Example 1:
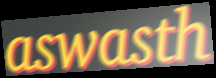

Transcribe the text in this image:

aswasth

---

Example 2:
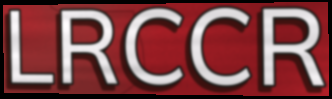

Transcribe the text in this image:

LRCCR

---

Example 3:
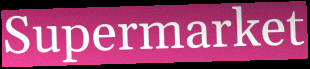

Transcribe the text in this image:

Supermarket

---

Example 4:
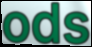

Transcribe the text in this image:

ods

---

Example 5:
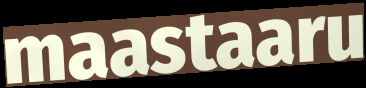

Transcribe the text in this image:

maastaaru